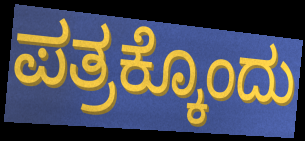
ಪತ್ರಕ್ಕೊಂದು